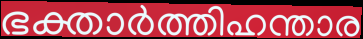
ഭക്താർത്തിഹന്താര